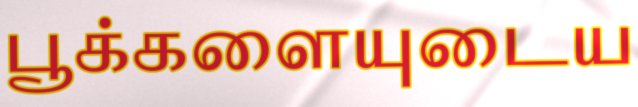
பூக்களையுடைய